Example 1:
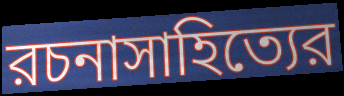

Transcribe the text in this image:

রচনাসাহিত্যের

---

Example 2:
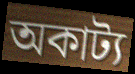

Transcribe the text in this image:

অকাট্য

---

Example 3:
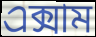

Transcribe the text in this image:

এক্সাম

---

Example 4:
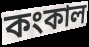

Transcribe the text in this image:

কংকাল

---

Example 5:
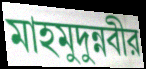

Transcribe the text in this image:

মাহমুদুন্নবীর